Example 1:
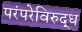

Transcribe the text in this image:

परंपरेविरुद्ध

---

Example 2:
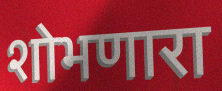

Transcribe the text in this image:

शोभणारा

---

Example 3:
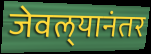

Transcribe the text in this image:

जेवल्यानंतर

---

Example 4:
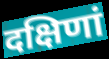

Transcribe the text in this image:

दक्षिणां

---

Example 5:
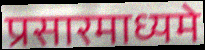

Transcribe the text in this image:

प्रसारमाध्यमे